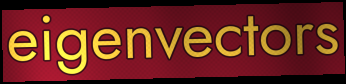
eigenvectors